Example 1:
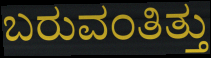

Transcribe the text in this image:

ಬರುವಂತಿತ್ತು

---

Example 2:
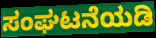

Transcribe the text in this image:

ಸಂಘಟನೆಯಡಿ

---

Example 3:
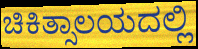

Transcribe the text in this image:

ಚಿಕಿತ್ಸಾಲಯದಲ್ಲಿ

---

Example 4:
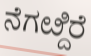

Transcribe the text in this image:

ನೆಗೞ್ದಿರೆ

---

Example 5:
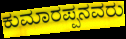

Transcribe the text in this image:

ಕುಮಾರಪ್ಪನವರು